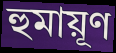
হুমায়ূণ